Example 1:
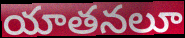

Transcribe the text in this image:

యాతనలూ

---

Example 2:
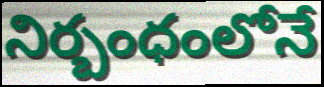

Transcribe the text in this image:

నిర్బంధంలోనే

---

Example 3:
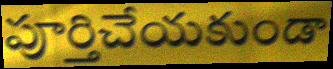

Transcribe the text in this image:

పూర్తిచేయకుండా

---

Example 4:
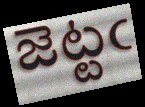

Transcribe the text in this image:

జెట్టఁ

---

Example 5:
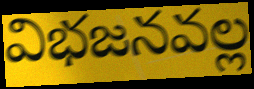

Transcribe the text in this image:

విభజనవల్ల